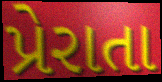
પ્રેરાતા